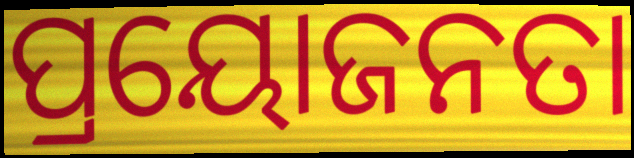
ପ୍ରୟୋଜନତା